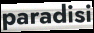
paradisi